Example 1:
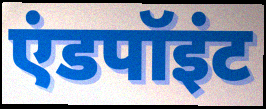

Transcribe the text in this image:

एंडपॉइंट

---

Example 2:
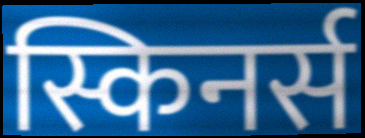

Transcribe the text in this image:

स्किनर्स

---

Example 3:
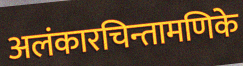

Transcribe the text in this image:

अलंकारचिन्तामणिके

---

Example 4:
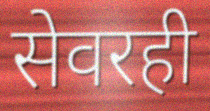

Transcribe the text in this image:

सेवरही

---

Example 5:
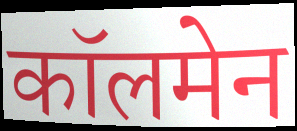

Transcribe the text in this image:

कॉलमेन